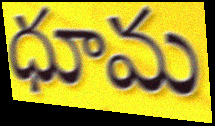
ధూమ